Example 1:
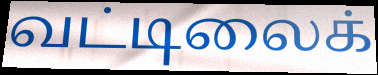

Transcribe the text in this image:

வட்டிலைக்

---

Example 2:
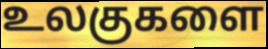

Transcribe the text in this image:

உலகுகளை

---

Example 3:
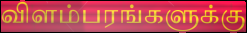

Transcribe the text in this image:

விளம்பரங்களுக்கு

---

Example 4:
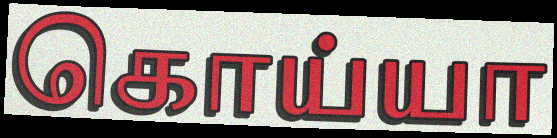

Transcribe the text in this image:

கொய்யா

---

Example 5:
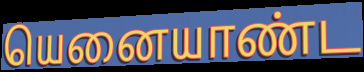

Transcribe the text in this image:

யெனையாண்ட